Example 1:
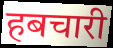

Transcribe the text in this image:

हबचारी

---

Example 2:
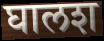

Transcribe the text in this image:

घालश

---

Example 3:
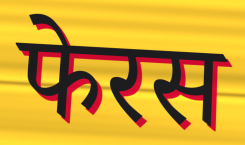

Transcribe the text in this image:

फेरस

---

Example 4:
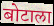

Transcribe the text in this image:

बोटाला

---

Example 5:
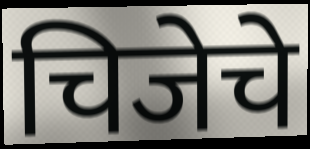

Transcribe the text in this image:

चिजेचे